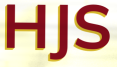
HJS